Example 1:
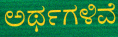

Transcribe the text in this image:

ಅರ್ಥಗಳಿವೆ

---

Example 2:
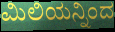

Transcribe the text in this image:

ಮಿಲಿಯನ್ನಿಂದ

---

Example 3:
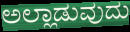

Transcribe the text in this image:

ಅಲ್ಲಾಡುವುದು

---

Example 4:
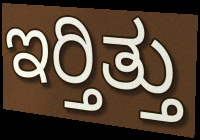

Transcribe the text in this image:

ಇರ್‍ತಿತ್ತು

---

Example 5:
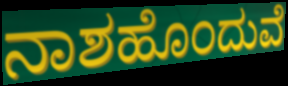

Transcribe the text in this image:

ನಾಶಹೊಂದುವೆ